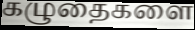
கழுதைகளை